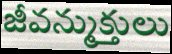
జీవన్ముక్తులు